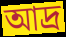
আদ্র